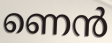
ണെൻ